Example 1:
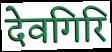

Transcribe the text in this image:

देवगिरि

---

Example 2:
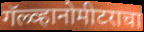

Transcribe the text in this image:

गॅल्व्हानोमीटराचा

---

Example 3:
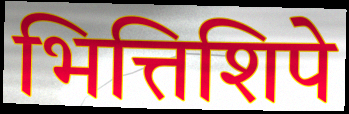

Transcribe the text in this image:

भित्तिशिपे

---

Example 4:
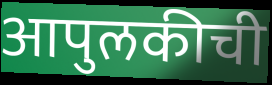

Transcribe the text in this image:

आपुलकीची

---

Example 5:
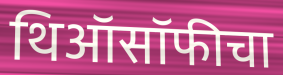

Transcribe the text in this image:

थिऑसॉफीचा